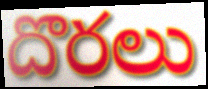
దొరలు